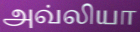
அவ்லியா